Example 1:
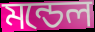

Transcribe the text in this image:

মন্ডেল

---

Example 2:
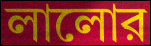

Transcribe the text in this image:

লালোর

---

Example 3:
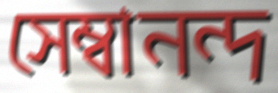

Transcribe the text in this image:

সেম্বানন্দ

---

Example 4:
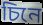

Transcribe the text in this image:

চিনে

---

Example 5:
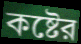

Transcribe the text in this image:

কষ্টের